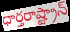
ధార్తరాష్ట్రాన్